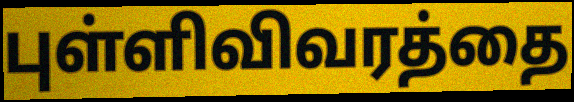
புள்ளிவிவரத்தை